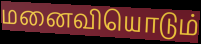
மனைவியொடும்